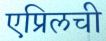
एप्रिलची